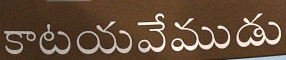
కాటయవేముడు